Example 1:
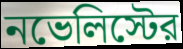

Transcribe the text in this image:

নভেলিস্টের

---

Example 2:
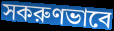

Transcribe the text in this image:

সকরুণভাবে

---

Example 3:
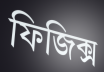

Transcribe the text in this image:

ফিজিক্স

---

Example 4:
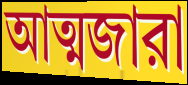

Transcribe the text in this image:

আত্মজারা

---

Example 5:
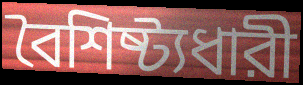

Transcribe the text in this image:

বৈশিষ্ট্যধারী